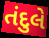
તંદુલે